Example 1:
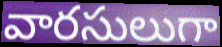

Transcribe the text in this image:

వారసులుగా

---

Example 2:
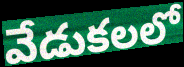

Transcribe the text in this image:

వేడుకలలో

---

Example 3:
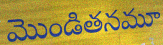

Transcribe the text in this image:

మొండితనమూ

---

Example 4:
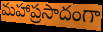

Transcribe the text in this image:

మహాప్రసాదంగా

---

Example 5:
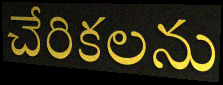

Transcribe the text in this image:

చేరికలను